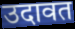
उदावत